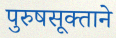
पुरुषसूक्ताने